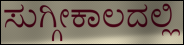
ಸುಗ್ಗೀಕಾಲದಲ್ಲಿ